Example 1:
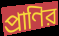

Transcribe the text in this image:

প্রাণির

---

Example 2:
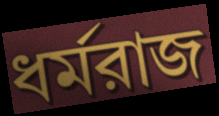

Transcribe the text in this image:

ধর্মরাজ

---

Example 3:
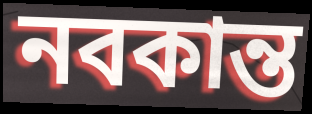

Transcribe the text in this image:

নবকান্ত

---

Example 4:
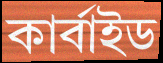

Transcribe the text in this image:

কার্বাইড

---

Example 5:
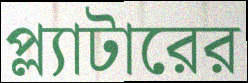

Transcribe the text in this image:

প্ল্যাটারের